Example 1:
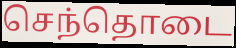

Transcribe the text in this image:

செந்தொடை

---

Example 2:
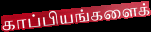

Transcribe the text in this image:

காப்பியங்களைக்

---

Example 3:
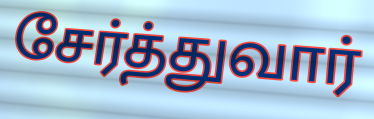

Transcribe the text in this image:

சேர்த்துவார்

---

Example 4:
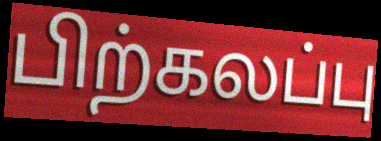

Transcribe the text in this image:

பிற்கலப்பு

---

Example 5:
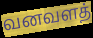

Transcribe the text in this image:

வனவளத்